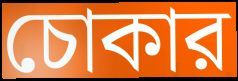
চোকার